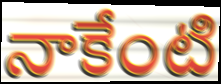
నాకేంటి